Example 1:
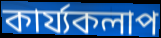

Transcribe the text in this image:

কাৰ্য্যকলাপ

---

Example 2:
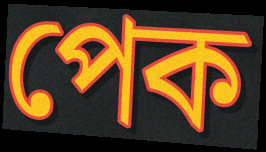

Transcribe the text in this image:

পেক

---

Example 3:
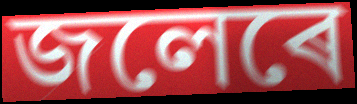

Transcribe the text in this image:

জলেৰে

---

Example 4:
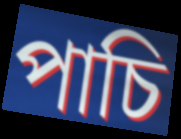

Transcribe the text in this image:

পাচি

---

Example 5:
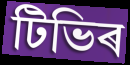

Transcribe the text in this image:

টিভিৰ